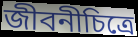
জীবনীচিত্রে